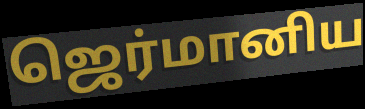
ஜெர்மானிய